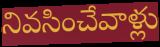
నివసించేవాళ్లు